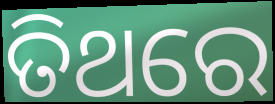
ତିଥରେ